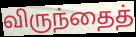
விருந்தைத்